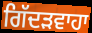
ਗਿੱਦੜਵਾਹਾ